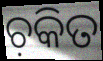
ଚ଼କିତ